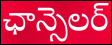
ఛాన్సెలర్